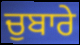
ਚੁਬਾਰੇ